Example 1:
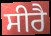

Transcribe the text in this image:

ਸੀਰੈ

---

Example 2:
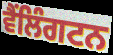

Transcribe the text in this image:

ਵੈਂਲਿੰਗਟਨ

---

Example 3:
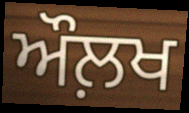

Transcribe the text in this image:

ਔਲ਼ਖ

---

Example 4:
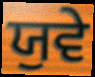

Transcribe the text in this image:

ਯੁਵੇ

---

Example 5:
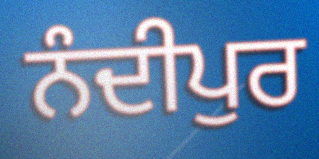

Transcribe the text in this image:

ਨੰਦੀਪੁਰ